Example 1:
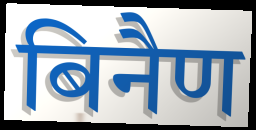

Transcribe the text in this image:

बिनैण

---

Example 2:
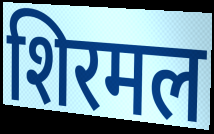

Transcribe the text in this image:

शिरमल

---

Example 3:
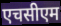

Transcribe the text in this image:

एचसीएम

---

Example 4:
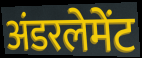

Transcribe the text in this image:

अंडरलेमेंट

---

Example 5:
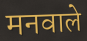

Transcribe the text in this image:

मनवाले